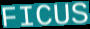
FICUS